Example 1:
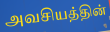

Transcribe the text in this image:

அவசியத்தின்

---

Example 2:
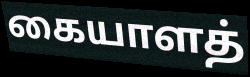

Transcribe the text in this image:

கையாளத்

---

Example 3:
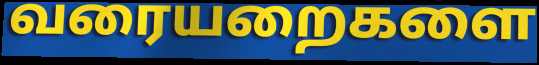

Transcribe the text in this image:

வரையறைகளை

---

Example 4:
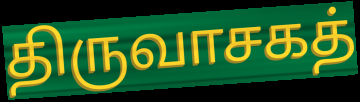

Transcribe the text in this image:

திருவாசகத்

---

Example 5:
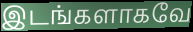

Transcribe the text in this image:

இடங்களாகவே